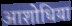
आशोधिया